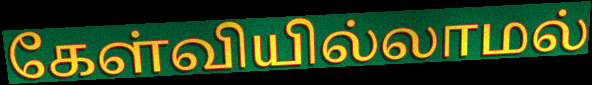
கேள்வியில்லாமல்